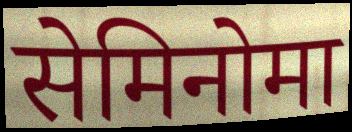
सेमिनोमा